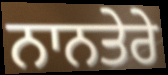
ਨਾਨਤੇਰੇ